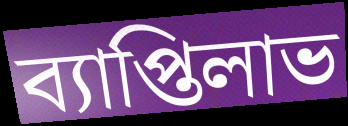
ব্যাপ্তিলাভ